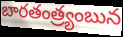
బారతంత్ర్యంబున